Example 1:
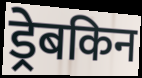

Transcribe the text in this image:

ड्रेबकिन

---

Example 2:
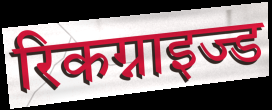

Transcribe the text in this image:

रिकग्नाइज्ड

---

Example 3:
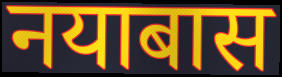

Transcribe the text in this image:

नयाबास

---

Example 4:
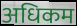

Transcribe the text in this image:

अधिकम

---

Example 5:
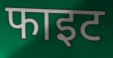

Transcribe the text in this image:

फाइट